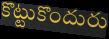
కొట్టుకొందురు